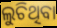
ଲୁଚିଥିବା